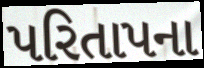
પરિતાપના